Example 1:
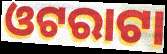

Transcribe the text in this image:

ଓଟରାଟା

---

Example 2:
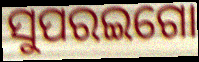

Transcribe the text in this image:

ସୁପରଇଗୋ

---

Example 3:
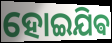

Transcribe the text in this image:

ହୋଇଯିଵ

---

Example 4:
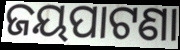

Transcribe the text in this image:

ଜୟପାଟଣା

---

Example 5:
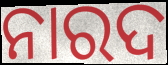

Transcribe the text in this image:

ନାରଦ